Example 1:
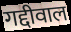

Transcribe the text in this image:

गद्दीवाल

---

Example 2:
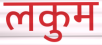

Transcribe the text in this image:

लकुम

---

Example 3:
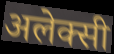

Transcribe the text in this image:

अलेक्सी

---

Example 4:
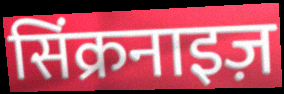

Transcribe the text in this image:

सिंक्रनाइज़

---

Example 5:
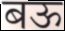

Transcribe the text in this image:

बऊ